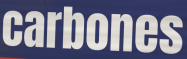
carbones